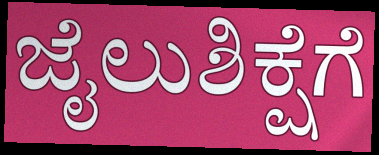
ಜೈಲುಶಿಕ್ಷೆಗೆ